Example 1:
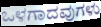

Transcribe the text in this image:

ಒಳಗಾದವುಗಳು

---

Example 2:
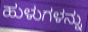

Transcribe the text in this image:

ಹುಳುಗಳನ್ನು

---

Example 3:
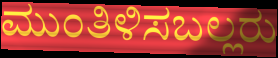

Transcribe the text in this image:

ಮುಂತಿಳಿಸಬಲ್ಲರು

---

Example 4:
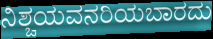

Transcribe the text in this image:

ನಿಶ್ಚಯವನರಿಯಬಾರದು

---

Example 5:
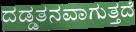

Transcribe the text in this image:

ದಡ್ಡತನವಾಗುತ್ತದೆ